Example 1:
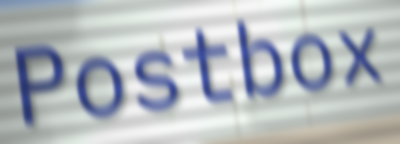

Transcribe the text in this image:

Postbox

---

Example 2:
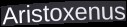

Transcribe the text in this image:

Aristoxenus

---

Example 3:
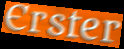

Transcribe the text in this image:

Erster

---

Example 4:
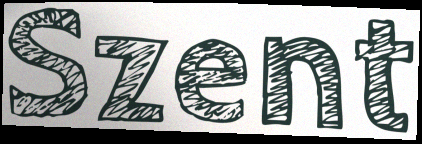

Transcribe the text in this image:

Szent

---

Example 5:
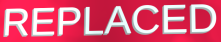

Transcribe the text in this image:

REPLACED